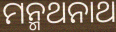
ମନ୍ମଥନାଥ